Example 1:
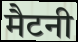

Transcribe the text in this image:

मैटनी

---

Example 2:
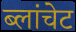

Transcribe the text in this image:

ब्लांचेट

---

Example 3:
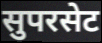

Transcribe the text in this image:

सुपरसेट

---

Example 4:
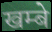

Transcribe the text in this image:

खम्बे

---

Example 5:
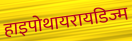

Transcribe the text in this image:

हाइपोथायरायडिज्म